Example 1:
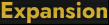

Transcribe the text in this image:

Expansion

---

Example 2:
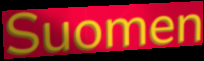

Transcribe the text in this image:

Suomen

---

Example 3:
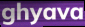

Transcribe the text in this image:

ghyava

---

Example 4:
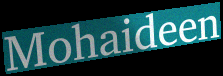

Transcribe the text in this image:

Mohaideen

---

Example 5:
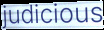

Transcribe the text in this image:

judicious